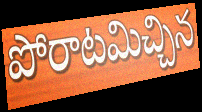
పోరాటమిచ్చిన